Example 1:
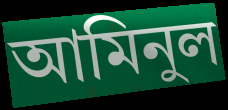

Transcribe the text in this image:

আমিনুল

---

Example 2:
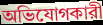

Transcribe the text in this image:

অভিযোগকারী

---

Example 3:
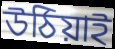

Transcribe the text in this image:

উঠিয়াই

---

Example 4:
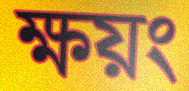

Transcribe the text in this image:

ক্ষয়ং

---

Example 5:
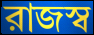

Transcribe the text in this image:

রাজস্ব